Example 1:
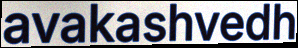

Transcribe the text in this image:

avakashvedh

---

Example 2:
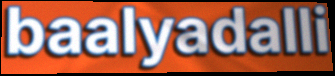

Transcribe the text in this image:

baalyadalli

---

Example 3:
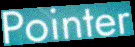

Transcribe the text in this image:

Pointer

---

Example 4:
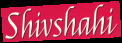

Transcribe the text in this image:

Shivshahi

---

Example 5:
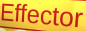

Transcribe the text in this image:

Effector